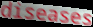
diseases